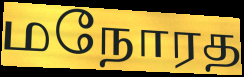
மநோரத